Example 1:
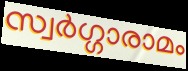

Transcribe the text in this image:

സ്വർഗ്ഗാരാമം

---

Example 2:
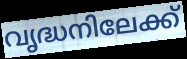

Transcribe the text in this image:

വൃദ്ധനിലേക്ക്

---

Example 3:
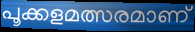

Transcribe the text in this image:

പൂക്കളമത്സരമാണ്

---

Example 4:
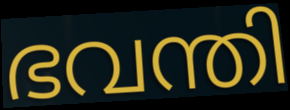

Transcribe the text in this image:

ഭവന്തി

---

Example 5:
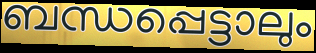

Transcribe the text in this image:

ബന്ധപ്പെട്ടാലും